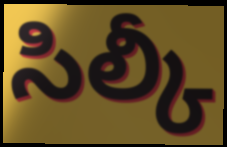
సిల్కీ